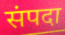
संपदा